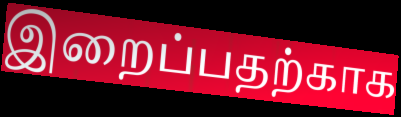
இறைப்பதற்காக